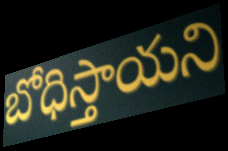
బోధిస్తాయని